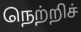
நெற்றிச்